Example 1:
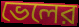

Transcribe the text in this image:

ভেলের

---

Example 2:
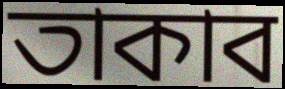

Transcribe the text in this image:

তাকাব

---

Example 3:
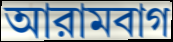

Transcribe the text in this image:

আরামবাগ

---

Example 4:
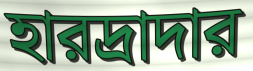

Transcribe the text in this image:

হারদ্রাদার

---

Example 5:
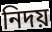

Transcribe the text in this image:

নিদয়